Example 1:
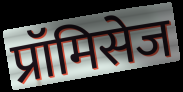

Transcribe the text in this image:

प्रॉमिसेज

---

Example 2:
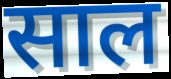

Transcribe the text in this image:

साल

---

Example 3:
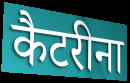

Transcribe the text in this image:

कैटरीना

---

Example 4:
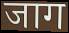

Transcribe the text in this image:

जाग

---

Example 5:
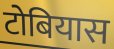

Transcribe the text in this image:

टोबियास